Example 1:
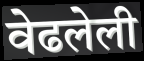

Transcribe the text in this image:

वेढलेली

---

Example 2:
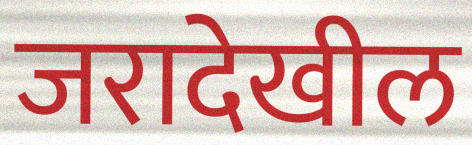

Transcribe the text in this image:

जरादेखील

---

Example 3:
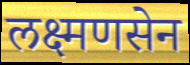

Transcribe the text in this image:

लक्ष्मणसेन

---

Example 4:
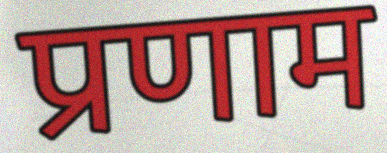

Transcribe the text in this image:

प्रणाम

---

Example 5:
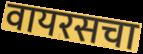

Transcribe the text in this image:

वायरसचा